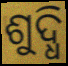
ଶୁଦ୍ଧି